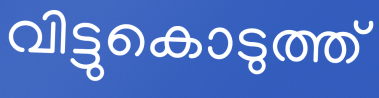
വിട്ടുകൊടുത്ത്